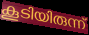
കൂടിയിരുന്ന്